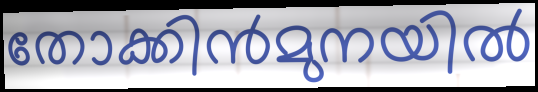
തോക്കിൻമുനയിൽ